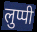
लुप्पी